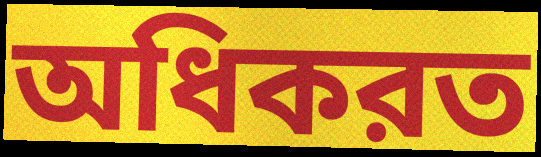
অধিকরত